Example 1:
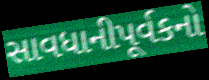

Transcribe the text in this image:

સાવધાનીપૂર્વકનો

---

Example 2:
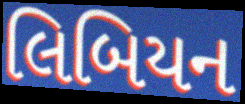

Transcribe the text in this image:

લિબિયન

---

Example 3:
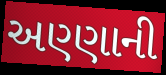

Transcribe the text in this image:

અણ્ણાની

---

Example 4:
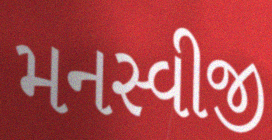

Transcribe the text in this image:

મનસ્વીજી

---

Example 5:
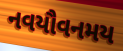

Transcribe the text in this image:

નવયૌવનમય